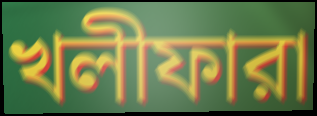
খলীফারা